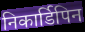
निकार्डिपिन